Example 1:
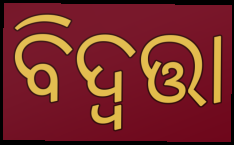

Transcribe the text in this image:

ବିଦ୍ୱତ୍ତା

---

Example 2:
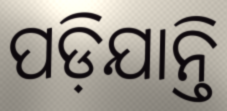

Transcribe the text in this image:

ପଡ଼ିଯାନ୍ତି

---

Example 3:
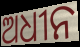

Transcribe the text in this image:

ଅଧୀନ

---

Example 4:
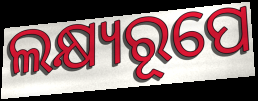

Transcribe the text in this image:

ଲକ୍ଷ୍ୟରୂପେ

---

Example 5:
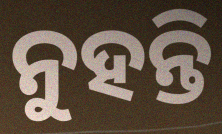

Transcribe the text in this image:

ନୁହନ୍ତି